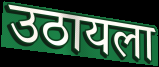
उठायला